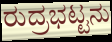
ರುದ್ರಭಟ್ಟನು